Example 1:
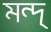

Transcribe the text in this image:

মন্দ্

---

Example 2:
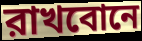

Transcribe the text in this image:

রাখবোনে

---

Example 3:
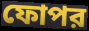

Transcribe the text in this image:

ফোপর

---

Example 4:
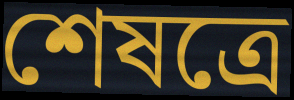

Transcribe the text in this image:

শেষত্রে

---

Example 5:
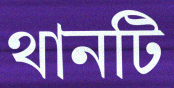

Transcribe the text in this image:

থানটি